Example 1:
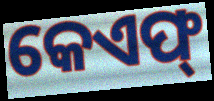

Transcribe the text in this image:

କେଏଫ୍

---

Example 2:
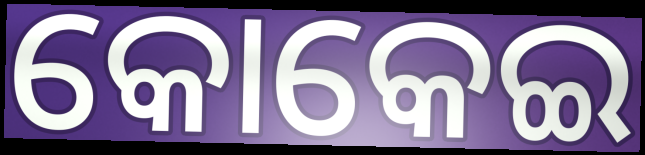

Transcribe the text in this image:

କୋକେଇ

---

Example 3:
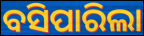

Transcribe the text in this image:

ବସିପାରିଲା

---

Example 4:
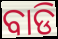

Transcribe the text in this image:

ବାଡି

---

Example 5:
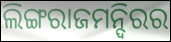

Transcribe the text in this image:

ଲିଙ୍ଗରାଜମନ୍ଦିରର